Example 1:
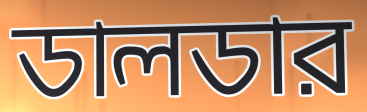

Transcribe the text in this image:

ডালডার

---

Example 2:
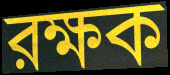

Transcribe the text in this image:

রক্ষক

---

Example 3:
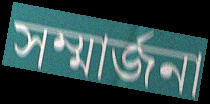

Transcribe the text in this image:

সম্মার্জনা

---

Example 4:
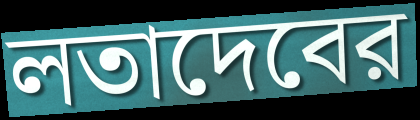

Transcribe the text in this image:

লতাদেবের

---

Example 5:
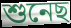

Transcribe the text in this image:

শুনেছ